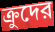
ক্রুদের